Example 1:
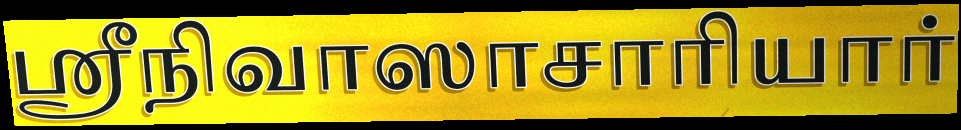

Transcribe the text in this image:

ஸ்ரீநிவாஸாசாரியார்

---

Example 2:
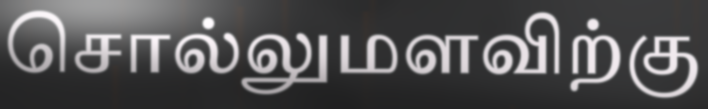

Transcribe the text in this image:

சொல்லுமளவிற்கு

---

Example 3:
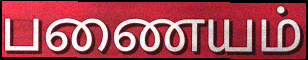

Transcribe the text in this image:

பணையம்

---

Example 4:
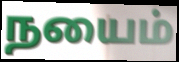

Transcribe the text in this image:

நயைம்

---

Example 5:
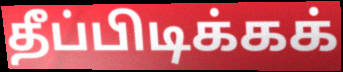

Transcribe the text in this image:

தீப்பிடிக்கக்